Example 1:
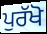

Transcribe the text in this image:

ਪੁਰੱਖੋ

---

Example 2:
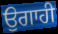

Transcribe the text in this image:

ਉਗਾਹੀ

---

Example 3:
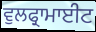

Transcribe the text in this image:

ਵੁਲਫ੍ਰਾਮਾਈਟ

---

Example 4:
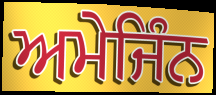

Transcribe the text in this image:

ਅਮੇਜਿੰਨ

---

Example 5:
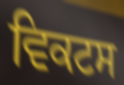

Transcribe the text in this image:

ਵਿਕਟਸ